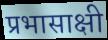
प्रभासाक्षी